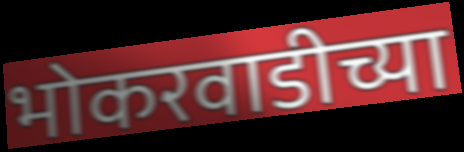
भोकरवाडीच्या